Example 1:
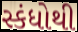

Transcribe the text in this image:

સ્કંધોથી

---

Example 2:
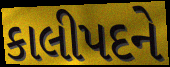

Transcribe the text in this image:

કાલીપદને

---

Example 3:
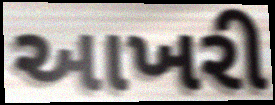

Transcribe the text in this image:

આખરી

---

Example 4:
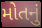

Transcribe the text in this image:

મોતનું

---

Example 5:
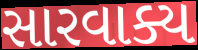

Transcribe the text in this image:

સારવાક્ય